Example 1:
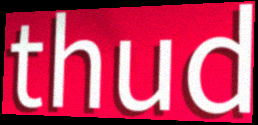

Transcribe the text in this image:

thud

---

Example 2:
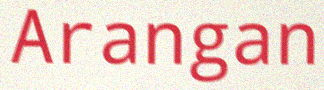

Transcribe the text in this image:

Arangan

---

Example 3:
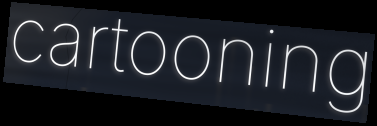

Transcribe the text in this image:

cartooning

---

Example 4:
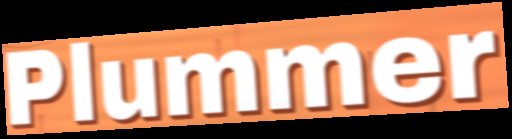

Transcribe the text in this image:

Plummer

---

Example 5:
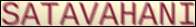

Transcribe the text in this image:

SATAVAHANI